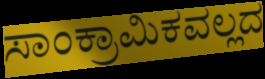
ಸಾಂಕ್ರಾಮಿಕವಲ್ಲದ